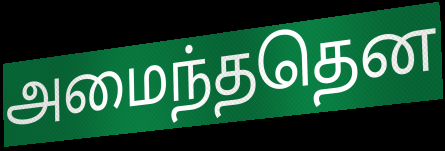
அமைந்ததென